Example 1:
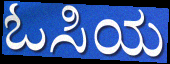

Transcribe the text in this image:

ಓಸಿಯ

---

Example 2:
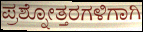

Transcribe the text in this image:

ಪ್ರಶ್ನೋತ್ತರಗಳಿಗಾಗಿ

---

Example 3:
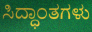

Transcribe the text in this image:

ಸಿದ್ಧಾಂತಗಳು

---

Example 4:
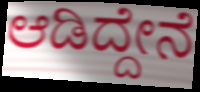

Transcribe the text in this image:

ಆಡಿದ್ದೇನೆ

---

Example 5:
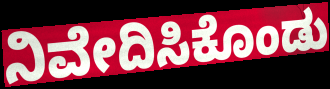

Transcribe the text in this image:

ನಿವೇದಿಸಿಕೊಂಡು